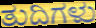
ತುದಿಗಳು